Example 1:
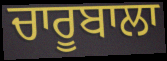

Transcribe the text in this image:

ਚਾਰੂਬਾਲਾ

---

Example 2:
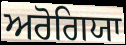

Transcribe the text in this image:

ਅਰੋਗਿਯਾ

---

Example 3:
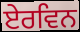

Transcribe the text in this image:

ਏਰਵਿਨ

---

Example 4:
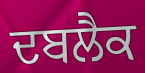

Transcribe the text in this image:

ਦਬਲੈਕ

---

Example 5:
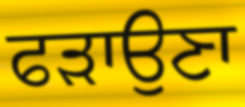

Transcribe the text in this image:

ਫੜਾਉਣਾ